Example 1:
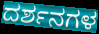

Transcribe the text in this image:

ದರ್ಶನಗಳ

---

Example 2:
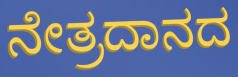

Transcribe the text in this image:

ನೇತ್ರದಾನದ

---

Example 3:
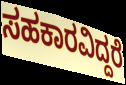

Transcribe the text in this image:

ಸಹಕಾರವಿದ್ದರೆ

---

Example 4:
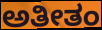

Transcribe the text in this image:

ಅತೀತಂ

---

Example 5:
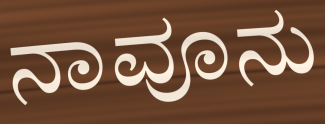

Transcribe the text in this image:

ನಾವೂನು